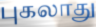
புகலாது